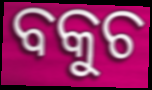
ବକୁଚ